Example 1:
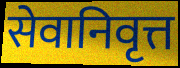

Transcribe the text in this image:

सेवानिवृत्त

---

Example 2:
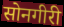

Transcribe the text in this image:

सोनगीरी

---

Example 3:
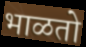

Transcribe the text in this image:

भाळतो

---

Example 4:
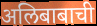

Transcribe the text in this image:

अलिबाबाची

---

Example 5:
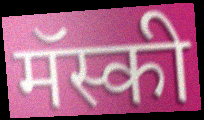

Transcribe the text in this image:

मॅस्की